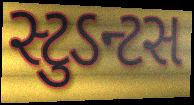
સ્ટુડન્ટસ